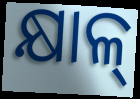
କ୍ଷାଳ୍